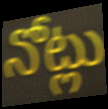
నోట్లు